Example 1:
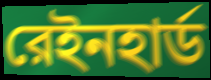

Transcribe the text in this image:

রেইনহার্ড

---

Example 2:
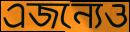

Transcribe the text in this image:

এজন্যেও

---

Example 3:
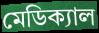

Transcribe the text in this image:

মেডিক্যাল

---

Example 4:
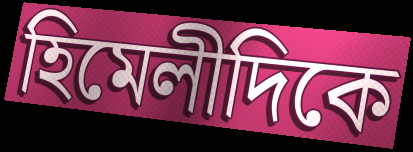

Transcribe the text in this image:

হিমেলীদিকে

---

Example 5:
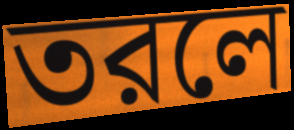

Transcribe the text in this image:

তরলে